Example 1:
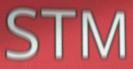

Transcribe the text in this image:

STM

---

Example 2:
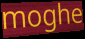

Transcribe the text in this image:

moghe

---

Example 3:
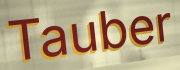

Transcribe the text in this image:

Tauber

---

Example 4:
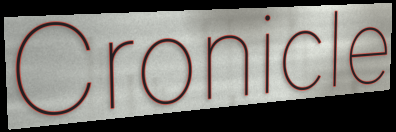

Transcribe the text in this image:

Cronicle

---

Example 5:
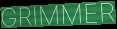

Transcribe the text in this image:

GRIMMER